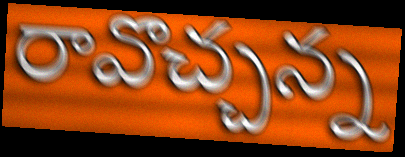
రావొచ్చన్న